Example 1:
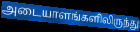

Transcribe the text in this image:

அடையாளங்களிலிருந்து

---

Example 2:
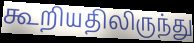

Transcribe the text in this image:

கூறியதிலிருந்து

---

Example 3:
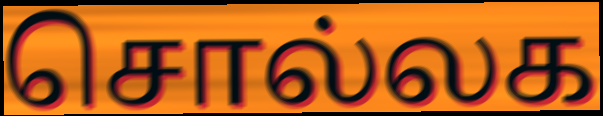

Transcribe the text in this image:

சொல்லக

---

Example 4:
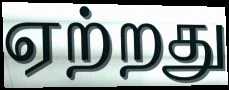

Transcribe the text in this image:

ஏற்றது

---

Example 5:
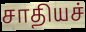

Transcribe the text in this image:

சாதியச்